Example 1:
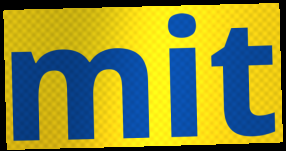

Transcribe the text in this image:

mit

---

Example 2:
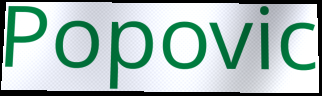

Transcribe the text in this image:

Popovic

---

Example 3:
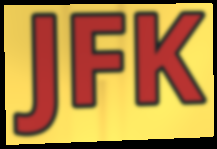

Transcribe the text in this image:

JFK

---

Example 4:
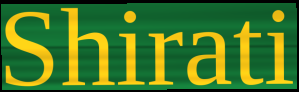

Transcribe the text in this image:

Shirati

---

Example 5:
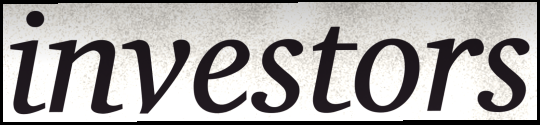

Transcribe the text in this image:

investors